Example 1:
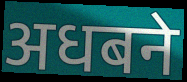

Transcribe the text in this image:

अधबने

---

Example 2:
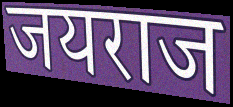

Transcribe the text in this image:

जयराज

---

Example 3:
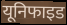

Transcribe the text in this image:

यूनिफाइड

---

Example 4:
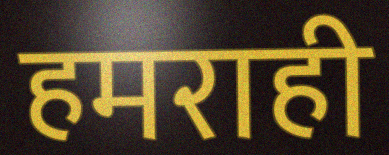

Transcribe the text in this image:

हमराही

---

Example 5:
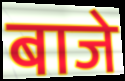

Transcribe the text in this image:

बाजे